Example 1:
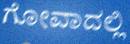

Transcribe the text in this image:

ಗೋವಾದಲ್ಲಿ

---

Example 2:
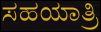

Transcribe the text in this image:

ಸಹಯಾತ್ರಿ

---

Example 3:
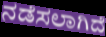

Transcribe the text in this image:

ನಡೆಸಲಾಗಿದೆ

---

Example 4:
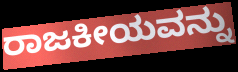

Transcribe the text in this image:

ರಾಜಕೀಯವನ್ನು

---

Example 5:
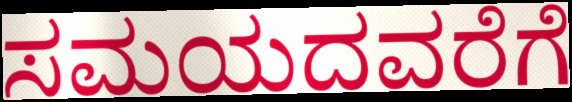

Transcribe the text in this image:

ಸಮಯದವರೆಗೆ